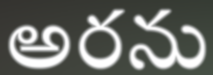
అరను